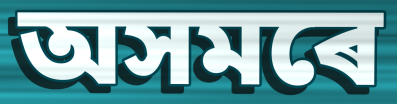
অসমৰে